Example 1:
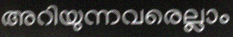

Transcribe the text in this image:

അറിയുന്നവരെല്ലാം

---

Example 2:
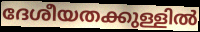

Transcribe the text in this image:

ദേശീയതക്കുള്ളിൽ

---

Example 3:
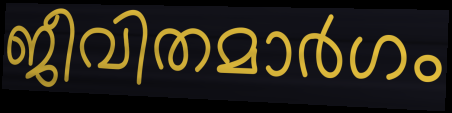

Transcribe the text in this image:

ജീവിതമാർഗം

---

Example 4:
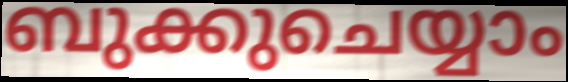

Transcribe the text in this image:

ബുക്കുചെയ്യാം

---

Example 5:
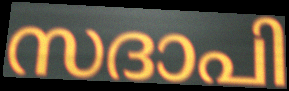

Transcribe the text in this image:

സദാപി